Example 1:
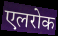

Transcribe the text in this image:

एलरोक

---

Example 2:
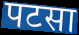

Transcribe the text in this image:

पटसा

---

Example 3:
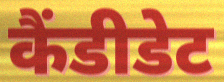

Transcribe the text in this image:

कैंडीडेट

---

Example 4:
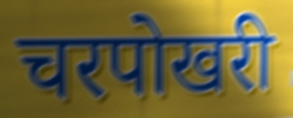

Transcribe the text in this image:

चरपोखरी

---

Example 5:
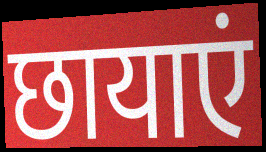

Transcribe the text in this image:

छायाएं